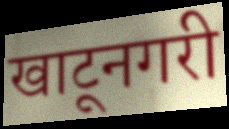
खाटूनगरी